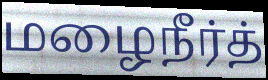
மழைநீர்த்